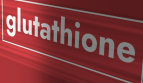
glutathione